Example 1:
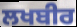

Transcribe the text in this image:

ਲਖਬੀਰ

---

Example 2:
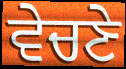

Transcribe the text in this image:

ਵੇਚਣੇ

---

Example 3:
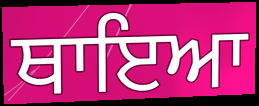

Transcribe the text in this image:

ਥਾਇਆ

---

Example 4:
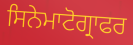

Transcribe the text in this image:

ਸਿਨੇਮਾਟੋਗ੍ਰਾਫਰ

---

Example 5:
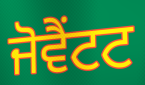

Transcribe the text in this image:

ਜੋਵੈਂਟਟ